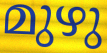
മുഴു